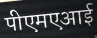
पीएमएआई